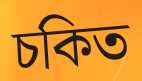
চকিত